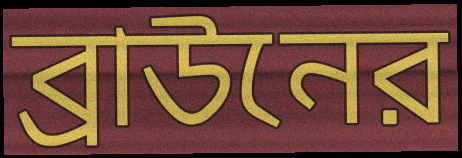
ব্রাউনের